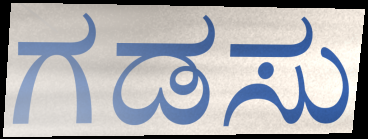
ಗಡಸು